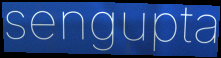
sengupta